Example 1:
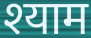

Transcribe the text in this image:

श्‍याम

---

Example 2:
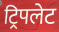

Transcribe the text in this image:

ट्रिपलेट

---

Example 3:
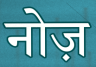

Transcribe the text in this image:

नोज़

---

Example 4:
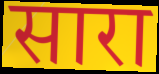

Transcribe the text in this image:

सारा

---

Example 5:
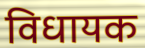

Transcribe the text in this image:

विधायक